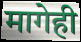
मागेही